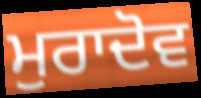
ਮੁਰਾਦੋਵ